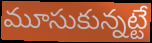
మూసుకున్నట్టే